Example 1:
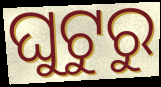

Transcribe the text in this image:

ଘୁଟୁରୁ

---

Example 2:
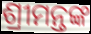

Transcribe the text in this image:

ଶ୍ରୀମନ୍ତଙ୍କ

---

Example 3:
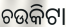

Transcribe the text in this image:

ଚଉକିଟା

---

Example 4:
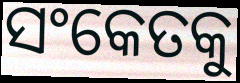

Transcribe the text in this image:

ସଂକେତକୁ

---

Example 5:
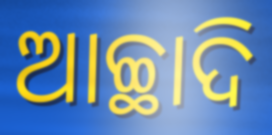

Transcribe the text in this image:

ଆଚ୍ଛାଦି